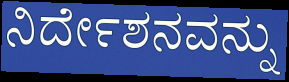
ನಿರ್ದೇಶನವನ್ನು